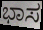
ಭಾಸ